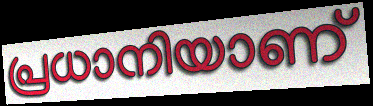
പ്രധാനിയാണ്